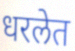
धरलेत